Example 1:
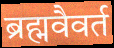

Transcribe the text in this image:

ब्रह्मवैवर्त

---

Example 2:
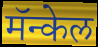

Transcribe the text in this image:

मॅन्केल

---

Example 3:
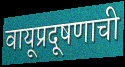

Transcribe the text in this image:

वायूप्रदूषणाची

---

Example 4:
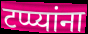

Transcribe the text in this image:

टप्प्यांना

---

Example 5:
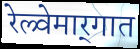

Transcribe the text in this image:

रेल्वेमार्गात